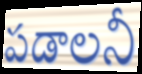
పడాలనీ